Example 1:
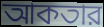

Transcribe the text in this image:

আকতার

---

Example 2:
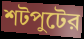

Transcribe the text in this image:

শটপুটের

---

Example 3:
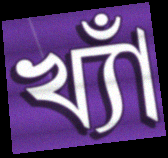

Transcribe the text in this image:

খ্যাঁ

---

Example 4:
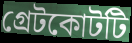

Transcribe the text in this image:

গ্রেটকোটটি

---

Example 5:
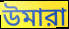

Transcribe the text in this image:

উমারা